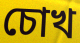
চোখ